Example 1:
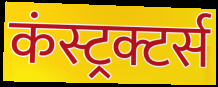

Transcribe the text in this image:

कंस्ट्रक्टर्स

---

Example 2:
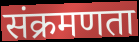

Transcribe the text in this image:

संक्रमणता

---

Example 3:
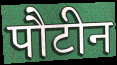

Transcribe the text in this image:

पौटीन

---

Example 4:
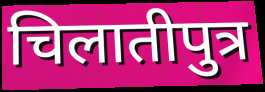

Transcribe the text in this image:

चिलातीपुत्र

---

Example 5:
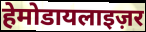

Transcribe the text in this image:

हेमोडायलाइज़र